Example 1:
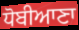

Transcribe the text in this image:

ਧੋਬੀਆਣਾ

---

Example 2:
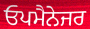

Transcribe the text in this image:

ਓਪਮੈਨੇਜਰ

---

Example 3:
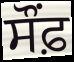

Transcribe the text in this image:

ਸੌਂਫ਼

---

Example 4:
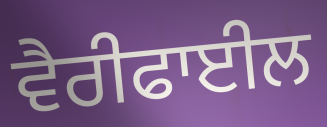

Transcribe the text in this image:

ਵੈਰੀਫਾਈਲ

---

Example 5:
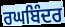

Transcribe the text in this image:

ਰਘਬਿੰਦਰ